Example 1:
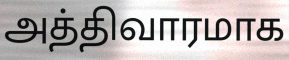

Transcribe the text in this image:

அத்திவாரமாக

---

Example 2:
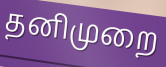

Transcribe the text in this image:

தனிமுறை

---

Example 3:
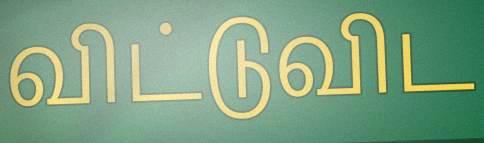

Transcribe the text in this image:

விட்டுவிட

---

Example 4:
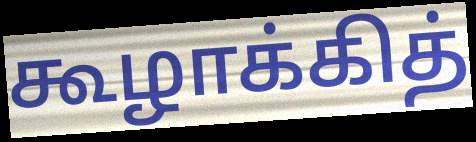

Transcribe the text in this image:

கூழாக்கித்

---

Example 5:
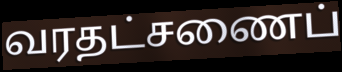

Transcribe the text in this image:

வரதட்சணைப்